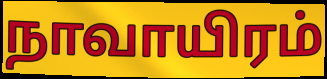
நாவாயிரம்